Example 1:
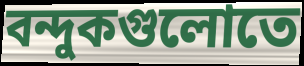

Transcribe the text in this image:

বন্দুকগুলোতে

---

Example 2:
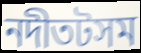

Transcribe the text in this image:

নদীতটসম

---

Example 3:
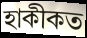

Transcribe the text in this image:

হাকীকত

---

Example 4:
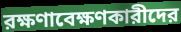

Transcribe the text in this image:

রক্ষণাবেক্ষণকারীদের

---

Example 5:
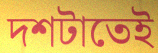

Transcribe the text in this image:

দশটাতেই